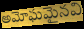
అమోఘమైనవి